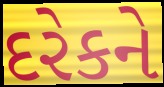
દરેકને